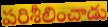
పరిశీలించాడు